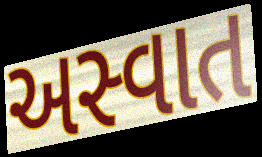
અસ્વાત